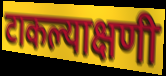
टाकल्याक्षणी